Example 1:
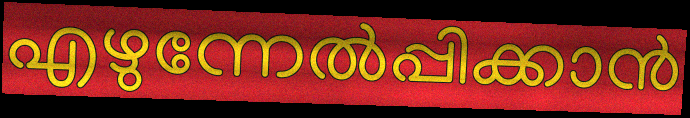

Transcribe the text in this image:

എഴുന്നേൽപ്പിക്കാൻ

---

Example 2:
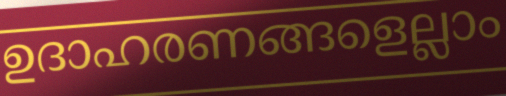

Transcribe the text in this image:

ഉദാഹരണങ്ങളെല്ലാം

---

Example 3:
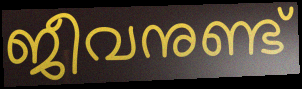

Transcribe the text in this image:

ജീവനുണ്ട്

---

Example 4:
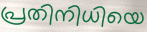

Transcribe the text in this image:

പ്രതിനിധിയെ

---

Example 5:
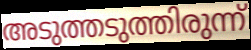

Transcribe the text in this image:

അടുത്തടുത്തിരുന്ന്